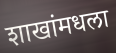
शाखांमधला